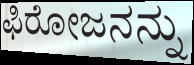
ಫಿರೋಜನನ್ನು